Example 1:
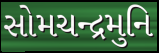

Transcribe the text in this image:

સોમચન્દ્રમુનિ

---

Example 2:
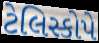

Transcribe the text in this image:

ટેલિસ્કોપે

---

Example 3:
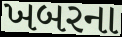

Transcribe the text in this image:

ખબરના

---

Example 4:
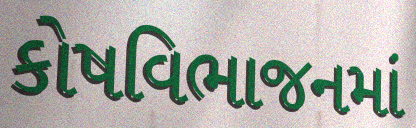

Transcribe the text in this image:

કોષવિભાજનમાં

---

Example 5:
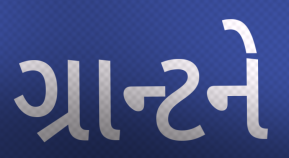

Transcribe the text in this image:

ગ્રાન્ટને